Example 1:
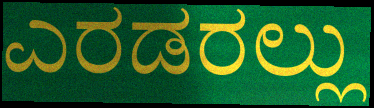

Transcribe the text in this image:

ಎರಡರಲ್ಲು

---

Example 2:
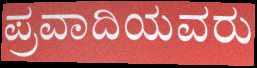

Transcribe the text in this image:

ಪ್ರವಾದಿಯವರು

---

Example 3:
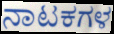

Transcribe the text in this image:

ನಾಟಕಗಳ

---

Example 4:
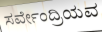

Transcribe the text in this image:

ಸರ್ವೇಂದ್ರಿಯವ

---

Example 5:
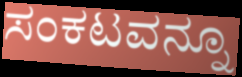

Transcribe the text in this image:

ಸಂಕಟವನ್ನೂ